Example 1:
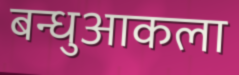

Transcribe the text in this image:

बन्धुआकला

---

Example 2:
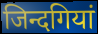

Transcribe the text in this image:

जिन्दगियां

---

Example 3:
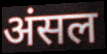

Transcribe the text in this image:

अंसल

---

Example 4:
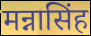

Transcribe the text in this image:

मन्नासिंह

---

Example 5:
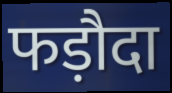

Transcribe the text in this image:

फड़ौदा